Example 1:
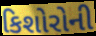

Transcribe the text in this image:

કિશોરોની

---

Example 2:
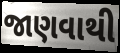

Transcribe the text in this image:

જાણવાથી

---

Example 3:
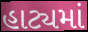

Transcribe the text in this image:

હાટ્યમાં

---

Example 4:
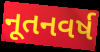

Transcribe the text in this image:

નૂતનવર્ષ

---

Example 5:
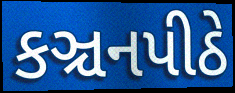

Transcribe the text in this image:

કઞ્ચનપીઠે